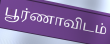
பூர்ணாவிடம்